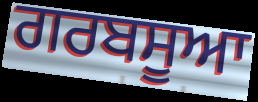
ਗਰਬਸੂਆ